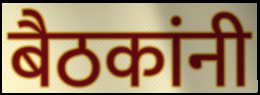
बैठकांनी